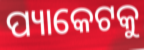
ପ୍ୟାକେଟକୁ